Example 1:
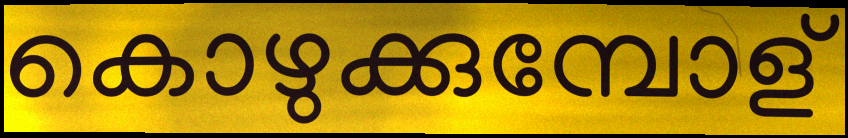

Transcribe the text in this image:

കൊഴുക്കുമ്പോള്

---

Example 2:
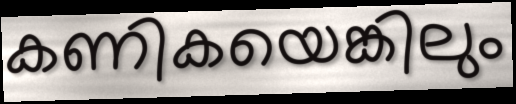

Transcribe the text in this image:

കണികയെങ്കിലും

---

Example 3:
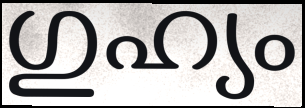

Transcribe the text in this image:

ഗുഹ്യം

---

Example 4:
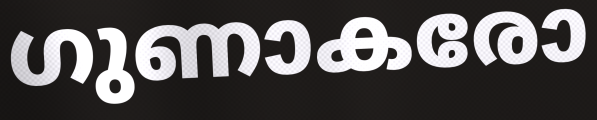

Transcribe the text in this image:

ഗുണാകരോ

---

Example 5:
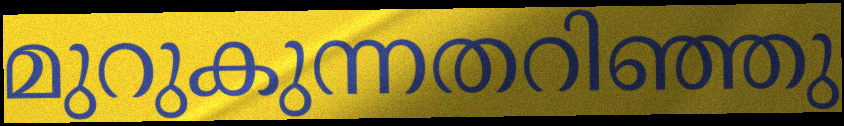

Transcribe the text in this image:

മുറുകുന്നതറിഞ്ഞു